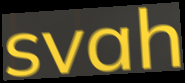
svah